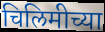
चिलिमीच्या